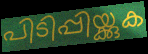
പിടിപ്പിയ്ക്കുക